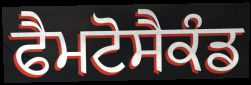
ਫੈਮਟੋਸੈਕੰਡ